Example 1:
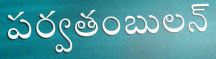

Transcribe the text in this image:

పర్వతంబులన్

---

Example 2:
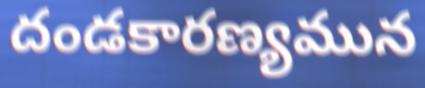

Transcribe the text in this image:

దండకారణ్యమున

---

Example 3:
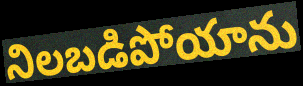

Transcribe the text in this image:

నిలబడిపోయాను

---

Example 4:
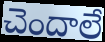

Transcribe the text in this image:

చెందాలే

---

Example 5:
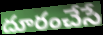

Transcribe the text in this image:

దూరంచేసే